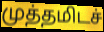
முத்தமிடச்